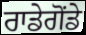
ਰਾਡੇਗੋਂਡੇ